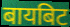
बायबिट